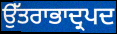
ਉੱਤਰਾਭਾਦ੍ਰਪਦ